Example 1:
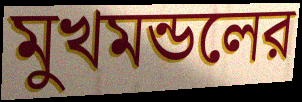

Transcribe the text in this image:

মুখমন্ডলের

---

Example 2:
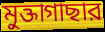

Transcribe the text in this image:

মুক্তাগাছার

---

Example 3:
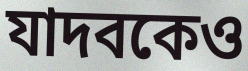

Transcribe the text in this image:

যাদবকেও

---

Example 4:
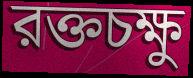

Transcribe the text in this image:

রক্তচক্ষু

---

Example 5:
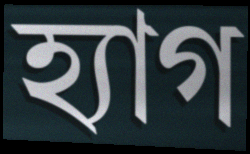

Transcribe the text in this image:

হ্যাগ